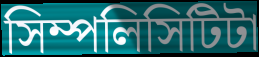
সিম্পলিসিটিটা